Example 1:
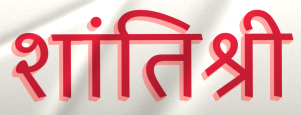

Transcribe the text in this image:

शांतिश्री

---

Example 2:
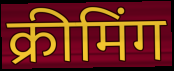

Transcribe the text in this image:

क्रीमिंग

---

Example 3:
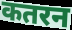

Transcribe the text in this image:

कतरन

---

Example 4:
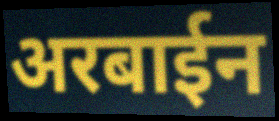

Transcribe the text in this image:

अरबाईन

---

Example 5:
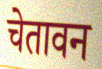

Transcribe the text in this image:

चेतावन